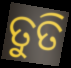
ତୁତି